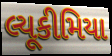
લ્યૂકીમિયા